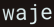
waje